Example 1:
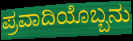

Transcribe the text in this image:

ಪ್ರವಾದಿಯೊಬ್ಬನು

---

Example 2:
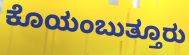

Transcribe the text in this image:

ಕೊಯಂಬುತ್ತೂರು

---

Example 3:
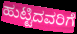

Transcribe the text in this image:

ಹುಟ್ಟಿದವರಿಗೆ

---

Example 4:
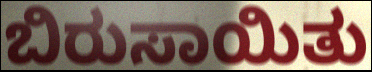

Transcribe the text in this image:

ಬಿರುಸಾಯಿತು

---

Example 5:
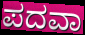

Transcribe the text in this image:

ಪದವಾ